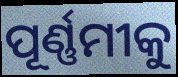
ପୂର୍ଣ୍ଣମୀକୁ